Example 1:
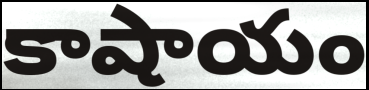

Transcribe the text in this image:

కాషాయం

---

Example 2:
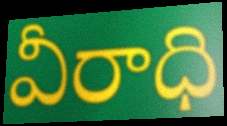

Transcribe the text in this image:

వీరాధి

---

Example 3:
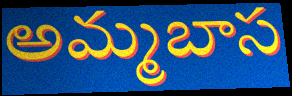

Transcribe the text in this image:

అమ్మబాస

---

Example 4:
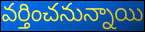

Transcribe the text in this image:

వర్తించనున్నాయి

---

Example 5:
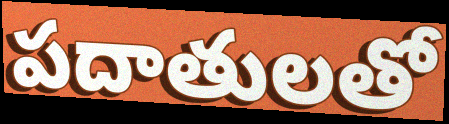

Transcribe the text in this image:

పదాతులతో